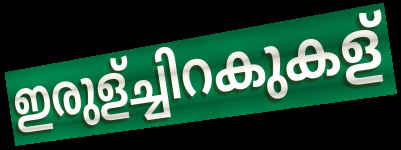
ഇരുള്ച്ചിറകുകള്